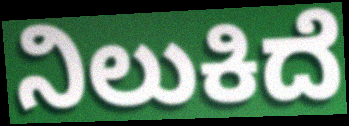
ನಿಲುಕಿದೆ